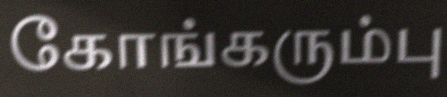
கோங்கரும்பு